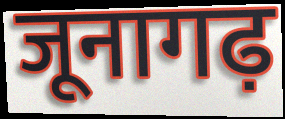
जूनागढ़